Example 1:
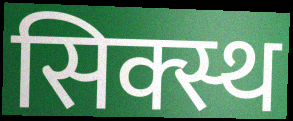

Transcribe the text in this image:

सिक्स्थ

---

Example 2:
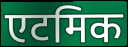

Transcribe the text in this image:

एटमिक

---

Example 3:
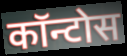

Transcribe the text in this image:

कॉन्टोस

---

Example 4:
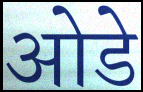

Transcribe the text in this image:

ओडे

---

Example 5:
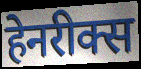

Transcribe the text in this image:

हेनरीक्स